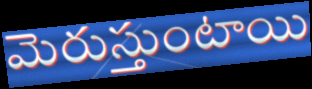
మెరుస్తుంటాయి